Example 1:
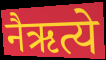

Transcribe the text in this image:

नैऋत्ये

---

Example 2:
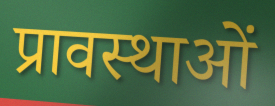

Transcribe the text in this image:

प्रावस्थाओं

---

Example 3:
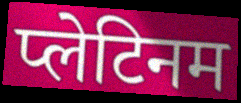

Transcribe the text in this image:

प्लेटिनम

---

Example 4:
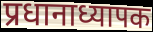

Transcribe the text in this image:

प्रधानाध्यापक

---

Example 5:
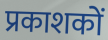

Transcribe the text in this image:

प्रकाशकों